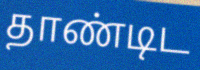
தாண்டிட